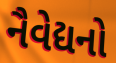
નૈવેદ્યનો